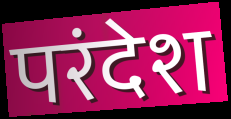
परंदेश